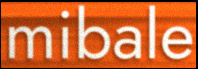
mibale